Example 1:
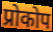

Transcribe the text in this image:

प्रोकोप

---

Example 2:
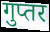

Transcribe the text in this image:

गुप्तर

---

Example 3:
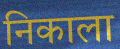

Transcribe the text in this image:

निकाला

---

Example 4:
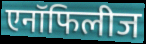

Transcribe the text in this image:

एनॉफिलीज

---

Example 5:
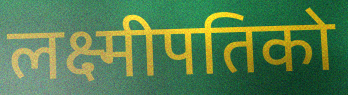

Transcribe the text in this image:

लक्ष्मीपतिको